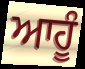
ਆਹੂੰ